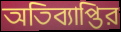
অতিব্যাপ্তির